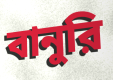
বানুরি